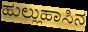
ಹುಲ್ಲುಹಾಸಿನ